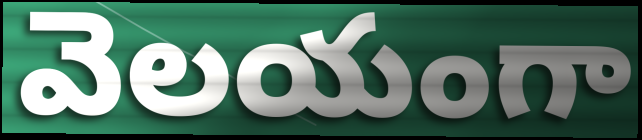
వెలయంగా